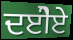
ਦਈੇਏ